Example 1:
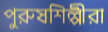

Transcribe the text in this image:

পুরুষশিল্পীরা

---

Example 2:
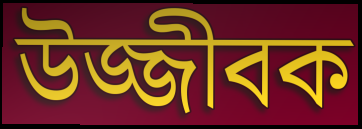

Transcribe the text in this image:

উজ্জীবক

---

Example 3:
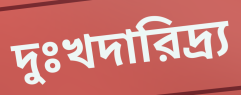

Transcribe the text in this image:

দুঃখদারিদ্র্য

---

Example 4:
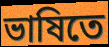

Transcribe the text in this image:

ভাষিতে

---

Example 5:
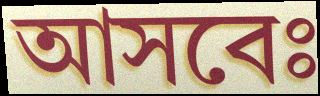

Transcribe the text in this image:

আসবেঃ